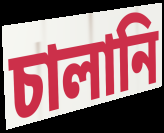
চালানি